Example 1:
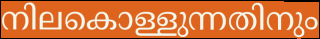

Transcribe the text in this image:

നിലകൊള്ളുന്നതിനും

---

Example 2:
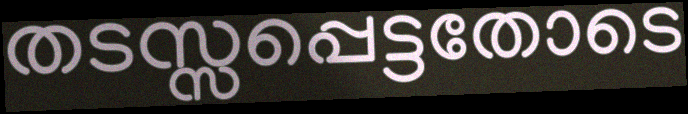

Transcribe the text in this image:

തടസ്സപ്പെട്ടതോടെ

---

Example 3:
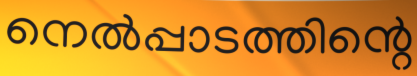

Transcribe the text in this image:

നെൽപ്പാടത്തിന്റെ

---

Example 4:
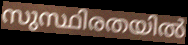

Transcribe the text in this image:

സുസ്ഥിരതയിൽ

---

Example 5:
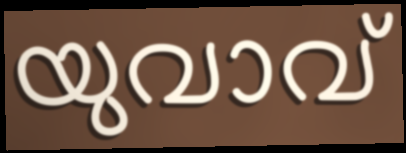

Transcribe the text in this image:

യുവാവ്